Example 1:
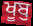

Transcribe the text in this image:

ਖੂਬੁ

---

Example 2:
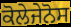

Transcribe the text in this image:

ਕੋਲੇਜੇਨੋਸ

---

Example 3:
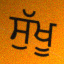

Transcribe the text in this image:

ਸੁੱਖੂ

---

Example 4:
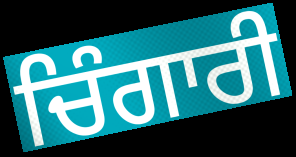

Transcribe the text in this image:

ਚਿੰਗਾਰੀ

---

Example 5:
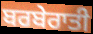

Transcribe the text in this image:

ਬਰਬੇਰਾਤੀ